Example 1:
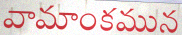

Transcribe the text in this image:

వామాంకమున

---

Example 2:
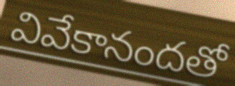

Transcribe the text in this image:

వివేకానందతో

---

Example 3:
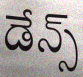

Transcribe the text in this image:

డేన్స్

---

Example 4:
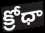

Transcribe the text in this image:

క్రోధా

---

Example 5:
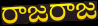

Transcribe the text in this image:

రాజరాజ